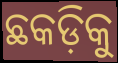
ଛକଡ଼ିକୁ